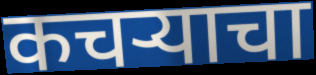
कचऱ्याचा